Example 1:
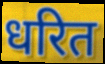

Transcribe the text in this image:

धरित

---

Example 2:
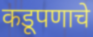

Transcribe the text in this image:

कडूपणाचे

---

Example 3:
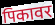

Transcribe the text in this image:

पिकावर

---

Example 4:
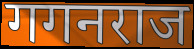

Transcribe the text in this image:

गगनराज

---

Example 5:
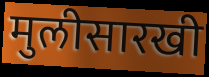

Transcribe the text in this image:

मुलीसारखी